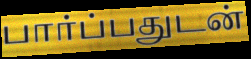
பார்ப்பதுடன்